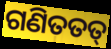
ଗଣିତତତ୍